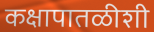
कक्षापातळीशी